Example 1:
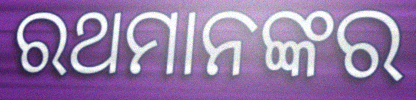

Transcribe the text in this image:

ରଥମାନଙ୍କର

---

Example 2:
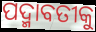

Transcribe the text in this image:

ପଦ୍ମାବତୀକୁ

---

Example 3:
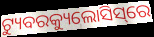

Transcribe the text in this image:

ଟ୍ୟୁବରକ୍ୟୁଲୋସିସ୍‌ରେ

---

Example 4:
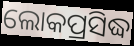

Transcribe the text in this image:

ଲୋକପ୍ରସିଦ୍ଧ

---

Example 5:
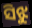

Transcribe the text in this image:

ସିଝୁ